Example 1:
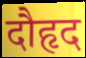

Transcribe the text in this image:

दौहृद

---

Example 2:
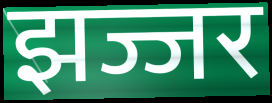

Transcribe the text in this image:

झज्जर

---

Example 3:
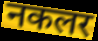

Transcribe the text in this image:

नकलर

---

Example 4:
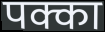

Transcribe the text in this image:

पक्का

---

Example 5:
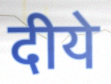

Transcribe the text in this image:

दीये